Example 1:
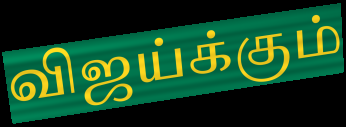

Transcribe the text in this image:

விஜய்க்கும்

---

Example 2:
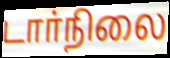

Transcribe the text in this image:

டார்நிலை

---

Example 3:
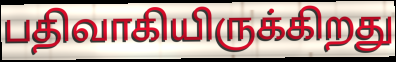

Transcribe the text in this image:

பதிவாகியிருக்கிறது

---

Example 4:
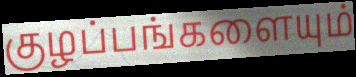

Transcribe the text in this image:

குழப்பங்களையும்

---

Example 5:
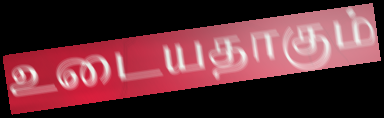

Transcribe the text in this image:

உடையதாகும்